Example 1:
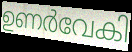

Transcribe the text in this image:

ഉണർവേകി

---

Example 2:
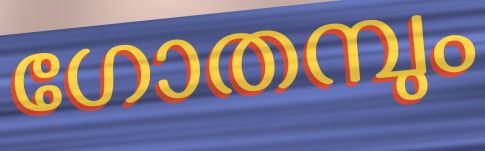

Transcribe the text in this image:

ഗോതമ്പും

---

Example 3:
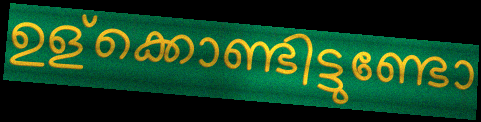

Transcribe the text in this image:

ഉള്ക്കൊണ്ടിട്ടുണ്ടോ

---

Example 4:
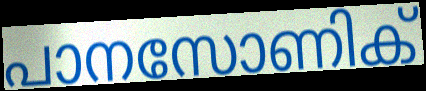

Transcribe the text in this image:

പാനസോണിക്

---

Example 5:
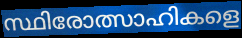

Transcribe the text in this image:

സ്ഥിരോത്സാഹികളെ